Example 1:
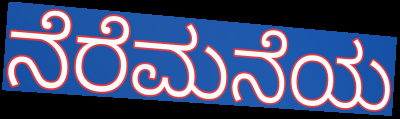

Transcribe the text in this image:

ನೆರೆಮನೆಯ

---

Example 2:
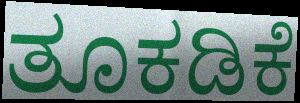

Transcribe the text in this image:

ತೂಕಡಿಕೆ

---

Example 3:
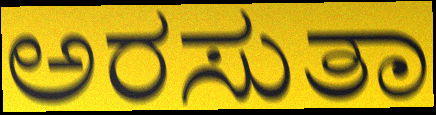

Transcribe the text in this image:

ಅರಸುತಾ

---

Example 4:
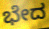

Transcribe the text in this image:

ಭೇದ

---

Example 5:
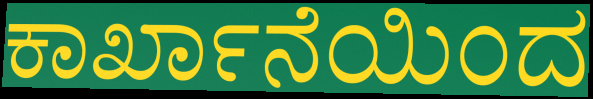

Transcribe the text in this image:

ಕಾರ್ಖಾನೆಯಿಂದ